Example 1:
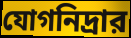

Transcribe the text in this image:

যোগনিদ্রার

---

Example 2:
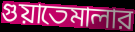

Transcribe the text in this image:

গুয়াতেমালার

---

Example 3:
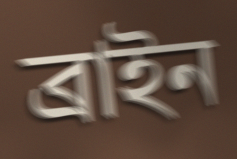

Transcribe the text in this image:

ব্রাইন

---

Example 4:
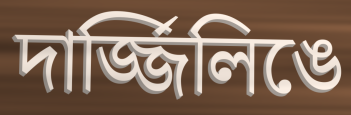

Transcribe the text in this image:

দার্জ্জিলিঙে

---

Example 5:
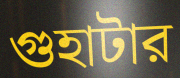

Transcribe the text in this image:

গুহাটার